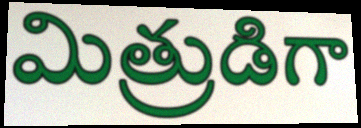
మిత్రుడిగా